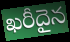
ఖరీదైన